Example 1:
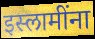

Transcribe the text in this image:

इस्लामींना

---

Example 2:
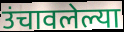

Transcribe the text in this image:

उंचावलेल्या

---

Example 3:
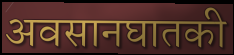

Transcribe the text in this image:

अवसानघातकी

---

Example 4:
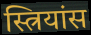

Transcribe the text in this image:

स्त्रियांस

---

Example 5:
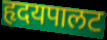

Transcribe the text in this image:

हृदयपालट